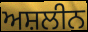
ਅਸ਼ਲੀਨ